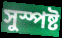
সুস্পষ্ট